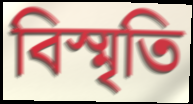
বিস্মৃতি